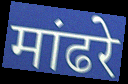
मांढरे